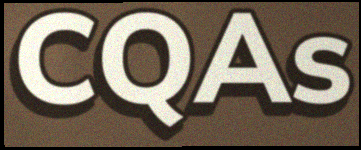
CQAs